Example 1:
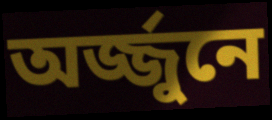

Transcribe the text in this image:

অর্জ্জুনে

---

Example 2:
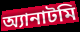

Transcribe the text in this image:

অ্যানাটমি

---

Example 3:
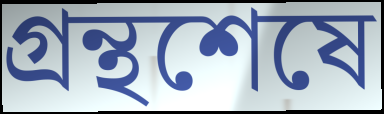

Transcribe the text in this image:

গ্রন্থশেষে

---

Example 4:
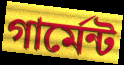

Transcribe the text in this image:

গার্মেন্ট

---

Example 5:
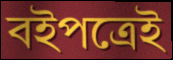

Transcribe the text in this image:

বইপত্রেই